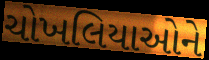
ચોખલિયાઓને